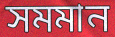
সমমান